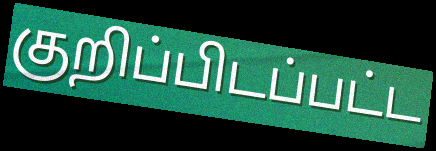
குறிப்பிடப்பட்ட